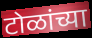
टोळांच्या